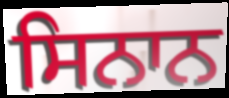
ਸਿਨਾਨ